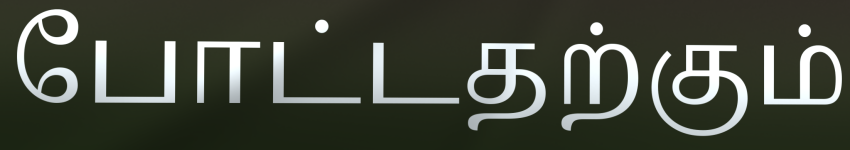
போட்டதற்கும்